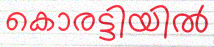
കൊരട്ടിയിൽ